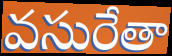
వసురేతా